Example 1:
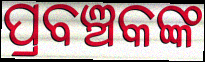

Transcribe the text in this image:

ପ୍ରବଞ୍ଚକଙ୍କ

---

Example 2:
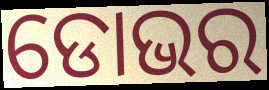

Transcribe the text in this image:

ଡୋଭର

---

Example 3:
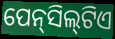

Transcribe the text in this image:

ପେନ୍‍ସିଲ୍‍ଟିଏ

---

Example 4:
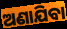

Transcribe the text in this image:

ଅଣାଯିବା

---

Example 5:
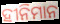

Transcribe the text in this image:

ହୀନିମାନ